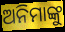
ଅନିମାଙ୍କୁ